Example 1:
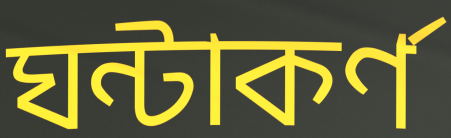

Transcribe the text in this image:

ঘন্টাকর্ণ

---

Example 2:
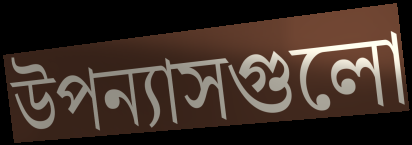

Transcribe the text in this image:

উপন্যাসগুলো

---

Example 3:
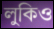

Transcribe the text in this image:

লুকিও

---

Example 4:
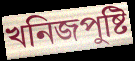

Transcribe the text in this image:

খনিজপুষ্টি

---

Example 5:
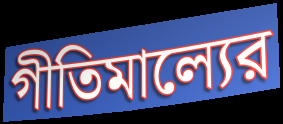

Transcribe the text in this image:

গীতিমাল্যের